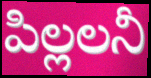
పిల్లలనీ